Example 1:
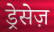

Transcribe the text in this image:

ड्रेसेज़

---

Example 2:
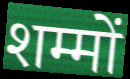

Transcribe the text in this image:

शम्मों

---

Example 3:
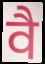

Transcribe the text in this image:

वै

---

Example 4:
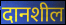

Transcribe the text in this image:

दानशील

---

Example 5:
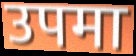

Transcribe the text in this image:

उपमा